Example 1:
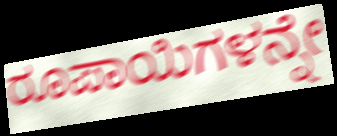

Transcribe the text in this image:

ರೂಪಾಯಿಗಳನ್ನೇ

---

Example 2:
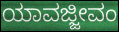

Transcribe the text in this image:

ಯಾವಜ್ಜೀವಂ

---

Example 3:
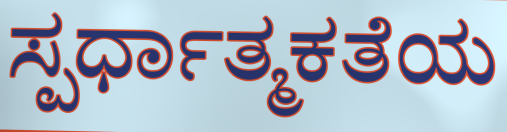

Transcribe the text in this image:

ಸ್ಪರ್ಧಾತ್ಮಕತೆಯ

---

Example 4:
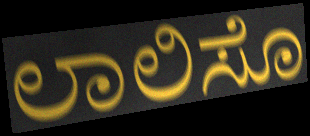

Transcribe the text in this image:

ಲಾಲಿಸೊ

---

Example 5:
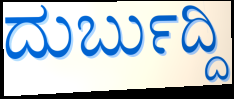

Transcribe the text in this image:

ದುರ್ಬುದ್ದಿ